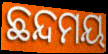
ଛନ୍ଦମୟ